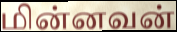
மின்னவன்